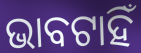
ଭାବଟାହିଁ